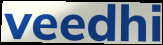
veedhi